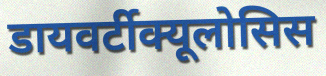
डायवर्टीक्यूलोसिस